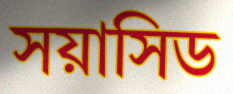
সয়াসিড